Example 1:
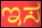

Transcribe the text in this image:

ಇಸ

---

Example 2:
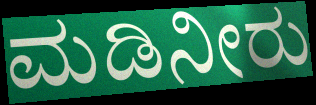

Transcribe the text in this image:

ಮಡಿನೀರು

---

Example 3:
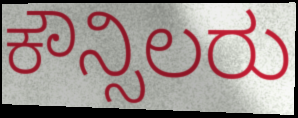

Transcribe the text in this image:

ಕೌನ್ಸಿಲರು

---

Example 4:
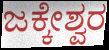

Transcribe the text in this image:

ಜಕ್ಕೇಶ್ವರ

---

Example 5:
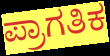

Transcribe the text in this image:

ಪ್ರಾಗತಿಕ